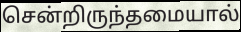
சென்றிருந்தமையால்